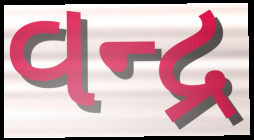
વન્દ્ર